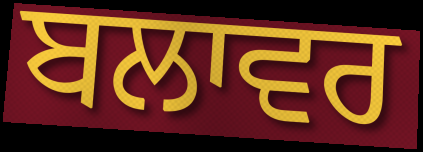
ਬਲਾਵਰ